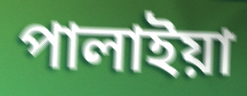
পালাইয়া